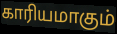
காரியமாகும்